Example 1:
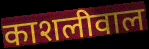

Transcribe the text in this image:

काशलीवाल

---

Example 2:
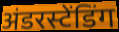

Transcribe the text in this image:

अंडरस्टेंडिंग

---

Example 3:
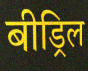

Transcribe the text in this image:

बीड्रिल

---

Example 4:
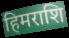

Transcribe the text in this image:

हिमराशि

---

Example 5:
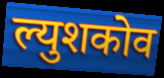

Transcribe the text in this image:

ल्युशकोव